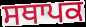
ਸਥਾਪਕ